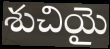
శుచియై